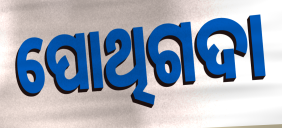
ପୋଥିଗଦା